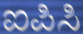
ಐಪಿಸಿ